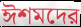
ঈশমদের